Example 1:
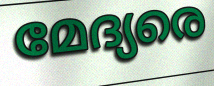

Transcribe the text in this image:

മേദ്യരെ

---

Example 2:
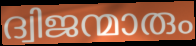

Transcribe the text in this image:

ദ്വിജന്മാരും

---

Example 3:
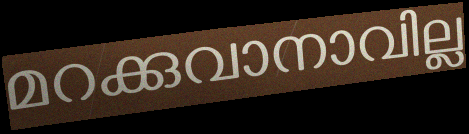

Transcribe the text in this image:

മറക്കുവാനാവില്ല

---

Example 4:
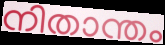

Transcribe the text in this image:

നിതാന്തം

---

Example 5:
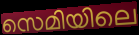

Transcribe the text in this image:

സെമിയിലെ